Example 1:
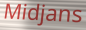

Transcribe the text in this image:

Midjans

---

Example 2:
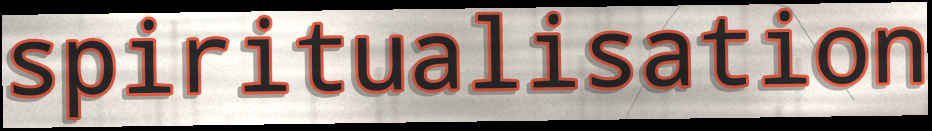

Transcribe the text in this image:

spiritualisation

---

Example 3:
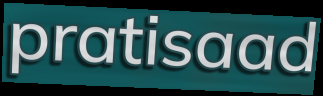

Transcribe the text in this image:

pratisaad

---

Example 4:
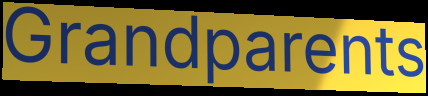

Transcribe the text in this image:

Grandparents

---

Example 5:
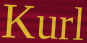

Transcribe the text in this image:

Kurl